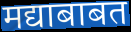
मद्याबाबत